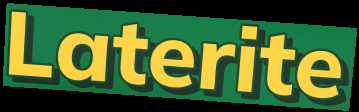
Laterite